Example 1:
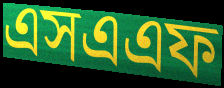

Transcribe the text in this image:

এসএএফ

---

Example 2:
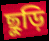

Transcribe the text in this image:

ছুড়ি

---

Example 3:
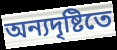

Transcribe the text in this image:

অন্যদৃষ্টিতে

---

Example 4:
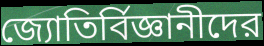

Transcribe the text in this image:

জ্যোতির্বিজ্ঞানীদের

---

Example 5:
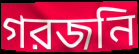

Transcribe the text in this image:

গরজনি